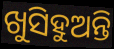
ଖୁସିହୁଅନ୍ତି